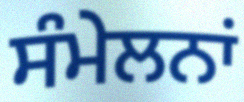
ਸੰਮੇਲਨਾਂ